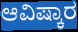
ಆವಿಷ್ಕಾರ